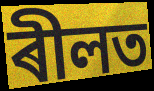
ৰীলত